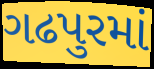
ગઢપુરમાં